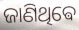
ଜାଣିଥିଵେ